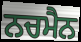
ਨਚਮੈਨ